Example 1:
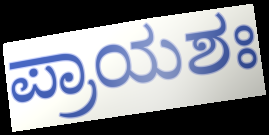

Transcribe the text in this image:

ಪ್ರಾಯಶಃ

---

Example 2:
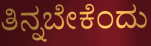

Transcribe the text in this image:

ತಿನ್ನಬೇಕೆಂದು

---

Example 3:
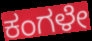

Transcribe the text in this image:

ಕಂಗಳೇ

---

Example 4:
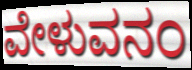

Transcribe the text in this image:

ವೇಳುವನಂ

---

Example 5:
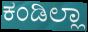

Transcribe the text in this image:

ಕಂಡಿಲ್ಲಾ